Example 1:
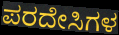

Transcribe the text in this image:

ಪರದೇಸಿಗಳ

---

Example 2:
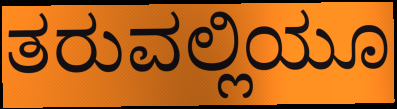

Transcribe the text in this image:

ತರುವಲ್ಲಿಯೂ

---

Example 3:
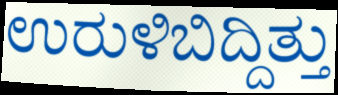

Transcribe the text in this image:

ಉರುಳಿಬಿದ್ದಿತ್ತು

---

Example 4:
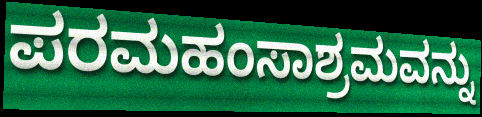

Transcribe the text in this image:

ಪರಮಹಂಸಾಶ್ರಮವನ್ನು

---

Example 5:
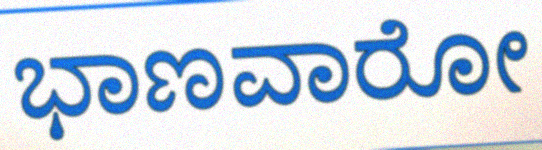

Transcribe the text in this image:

ಭಾಣವಾರೋ